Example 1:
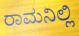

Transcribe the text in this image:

ರಾಮನಿಲ್ಲಿ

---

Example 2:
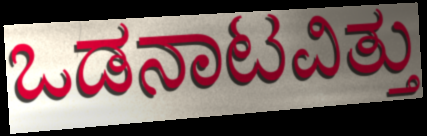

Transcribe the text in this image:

ಒಡನಾಟವಿತ್ತು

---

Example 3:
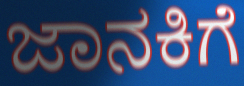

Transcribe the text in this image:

ಜಾನಕಿಗೆ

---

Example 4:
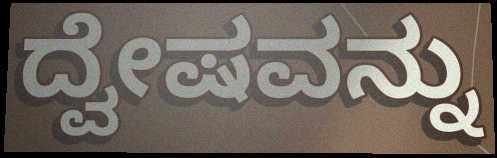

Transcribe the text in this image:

ದ್ವೇಷವನ್ನು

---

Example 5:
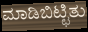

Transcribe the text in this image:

ಮಾಡಿಬಿಟ್ಟಿತು